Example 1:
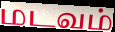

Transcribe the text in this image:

மடவம்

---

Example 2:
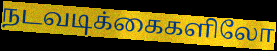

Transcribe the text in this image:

நடவடிக்கைகளிலோ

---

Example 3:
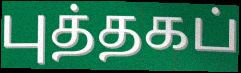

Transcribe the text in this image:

புத்தகப்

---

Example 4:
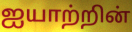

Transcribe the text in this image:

ஐயாற்றின்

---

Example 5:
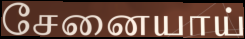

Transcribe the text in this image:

சேனையாய்